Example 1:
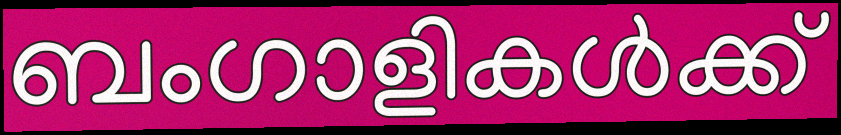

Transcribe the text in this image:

ബംഗാളികൾക്ക്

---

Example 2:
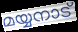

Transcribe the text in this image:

മയ്യനാട്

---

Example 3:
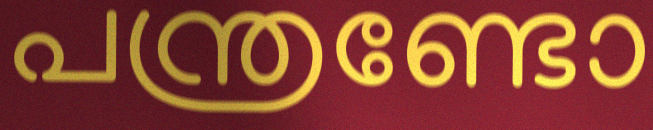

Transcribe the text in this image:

പന്ത്രണ്ടോ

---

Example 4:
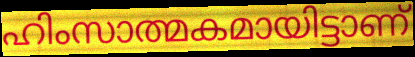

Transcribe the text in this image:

ഹിംസാത്മകമായിട്ടാണ്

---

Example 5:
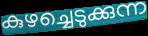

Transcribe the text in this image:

കുഴച്ചെടുക്കുന്ന